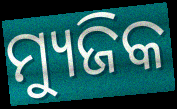
ମ୍ୟୁଜିକ